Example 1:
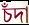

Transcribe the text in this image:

চঁদা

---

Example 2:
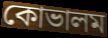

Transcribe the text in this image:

কোভালম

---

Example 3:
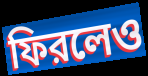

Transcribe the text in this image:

ফিরলেও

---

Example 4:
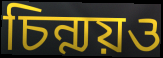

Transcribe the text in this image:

চিন্ময়ও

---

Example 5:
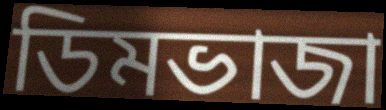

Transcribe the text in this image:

ডিমভাজা